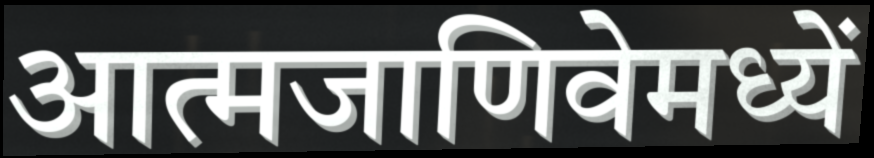
आत्मजाणिवेमध्यें